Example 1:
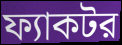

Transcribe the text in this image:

ফ্যাকটর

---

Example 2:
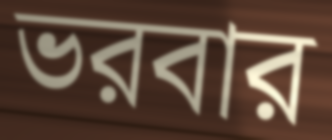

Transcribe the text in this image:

ভরবার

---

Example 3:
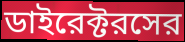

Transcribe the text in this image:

ডাইরেক্টরসের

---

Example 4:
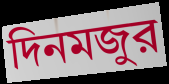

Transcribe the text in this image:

দিনমজুর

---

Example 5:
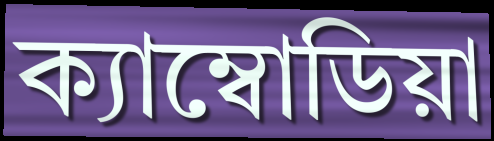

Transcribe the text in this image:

ক্যাম্বোডিয়া